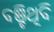
ବଞ୍ଚିଥିବି